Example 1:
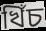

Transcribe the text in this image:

খিঁচ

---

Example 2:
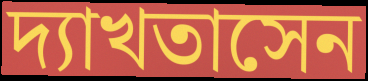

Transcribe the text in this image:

দ্যাখতাসেন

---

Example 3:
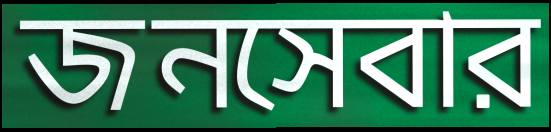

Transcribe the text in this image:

জনসেবার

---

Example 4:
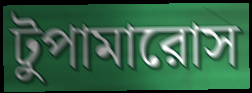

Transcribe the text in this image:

টুপামারোস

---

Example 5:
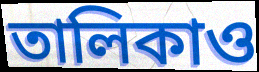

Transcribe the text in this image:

তালিকাও